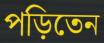
পড়িতেন